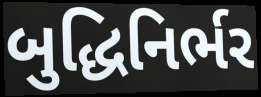
બુદ્ધિનિર્ભર